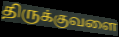
திருக்குவளை